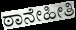
ಠಾನೇಹೀತಿ